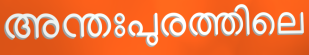
അന്തഃപുരത്തിലെ